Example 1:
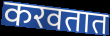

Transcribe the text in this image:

करवतात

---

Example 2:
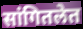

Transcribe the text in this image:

सांगितलेत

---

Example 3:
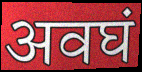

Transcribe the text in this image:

अवघं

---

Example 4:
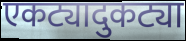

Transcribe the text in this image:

एकट्यादुकट्या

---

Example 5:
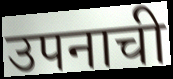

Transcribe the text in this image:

उपनाची